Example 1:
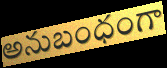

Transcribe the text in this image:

అనుబంధంగా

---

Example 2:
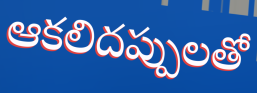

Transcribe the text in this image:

ఆకలిదప్పులతో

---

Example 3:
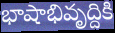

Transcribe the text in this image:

భాషాభివృద్దికి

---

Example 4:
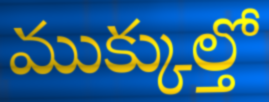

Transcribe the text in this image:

ముక్కుల్తో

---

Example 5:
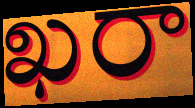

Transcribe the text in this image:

ఖరా